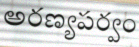
అరణ్యపర్వం